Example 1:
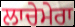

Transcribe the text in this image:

ਲਾਚੇਮੇਰਾ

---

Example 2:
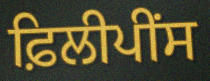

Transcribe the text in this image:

ਫ਼ਿਲੀਪੀਂਸ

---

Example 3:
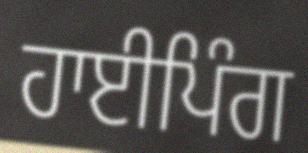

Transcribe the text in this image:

ਹਾਈਪਿੰਗ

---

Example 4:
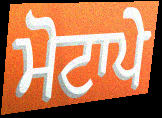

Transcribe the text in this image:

ਮੋਟਾਪੇ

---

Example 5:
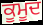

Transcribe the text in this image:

ਕੂਮੂਦ